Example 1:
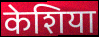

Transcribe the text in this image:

केशिया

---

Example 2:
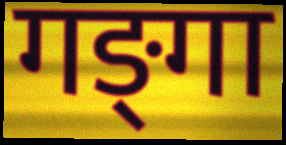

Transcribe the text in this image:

गङ्गा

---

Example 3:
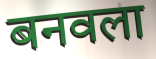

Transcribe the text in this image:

बनवला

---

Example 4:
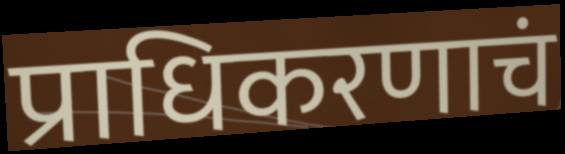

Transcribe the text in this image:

प्राधिकरणाचं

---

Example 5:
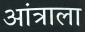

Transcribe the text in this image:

आंत्राला